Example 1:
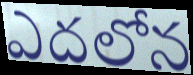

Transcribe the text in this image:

ఎదలోన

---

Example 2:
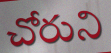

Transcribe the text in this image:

చోరుని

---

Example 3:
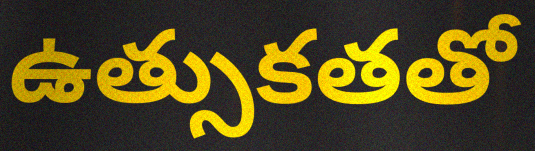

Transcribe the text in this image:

ఉత్సుకతతో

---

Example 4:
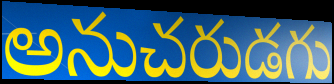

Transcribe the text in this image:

అనుచరుడగు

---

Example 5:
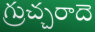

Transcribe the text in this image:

గ్రుచ్చరాదె